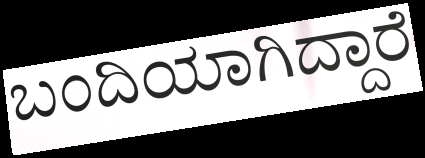
ಬಂದಿಯಾಗಿದ್ದಾರೆ